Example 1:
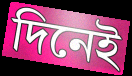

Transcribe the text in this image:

দিনেই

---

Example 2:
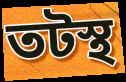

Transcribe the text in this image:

তটস্থ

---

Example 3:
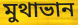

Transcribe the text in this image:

মুথাভান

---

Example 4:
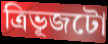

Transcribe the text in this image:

ত্ৰিভূজটো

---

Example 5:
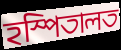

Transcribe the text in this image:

হস্পিতালত